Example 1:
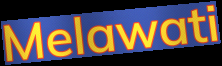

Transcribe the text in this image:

Melawati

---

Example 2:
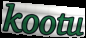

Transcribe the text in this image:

kootu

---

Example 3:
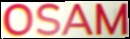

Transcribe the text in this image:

OSAM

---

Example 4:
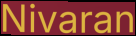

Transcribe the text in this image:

Nivaran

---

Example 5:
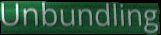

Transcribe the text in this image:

Unbundling